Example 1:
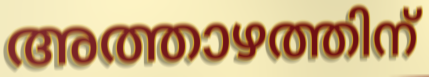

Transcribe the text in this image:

അത്താഴത്തിന്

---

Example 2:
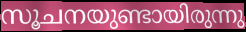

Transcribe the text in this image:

സൂചനയുണ്ടായിരുന്നു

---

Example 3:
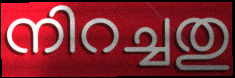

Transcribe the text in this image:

നിറച്ചതു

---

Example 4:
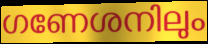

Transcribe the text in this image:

ഗണേശനിലും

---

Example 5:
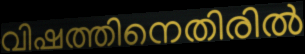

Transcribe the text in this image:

വിഷത്തിനെതിരിൽ